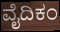
ವೈದಿಕಂ